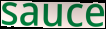
sauce